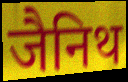
जैनिथ